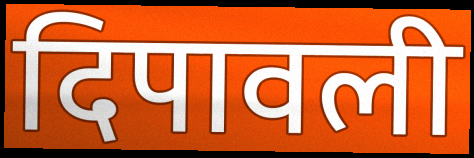
दिपावली